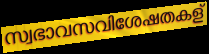
സ്വഭാവസവിശേഷതകള്